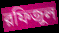
রফিজুল